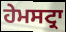
ਹੇਮਸਟ੍ਰਾ